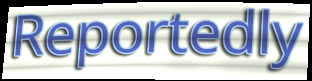
Reportedly